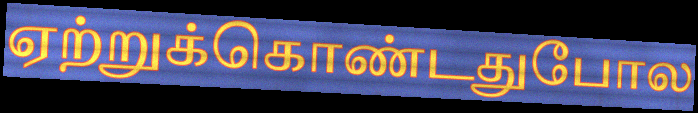
ஏற்றுக்கொண்டதுபோல